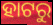
ହାଟରୁ